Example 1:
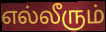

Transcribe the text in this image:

எல்லீரும்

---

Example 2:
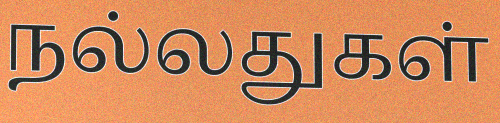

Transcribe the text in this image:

நல்லதுகள்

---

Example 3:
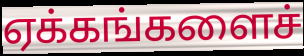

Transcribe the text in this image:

ஏக்கங்களைச்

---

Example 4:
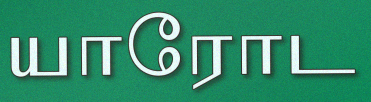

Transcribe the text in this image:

யாரோட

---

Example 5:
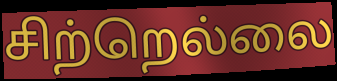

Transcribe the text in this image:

சிற்றெல்லை